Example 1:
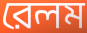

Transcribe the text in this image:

রেলম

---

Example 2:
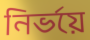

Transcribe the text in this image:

নির্ভয়ে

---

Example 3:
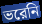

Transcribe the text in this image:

ভরেনি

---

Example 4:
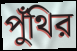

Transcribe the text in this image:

পুঁথির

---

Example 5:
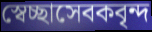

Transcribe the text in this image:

স্বেচ্ছাসেবকবৃন্দ